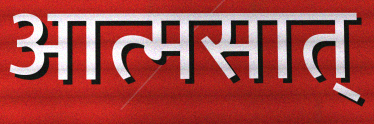
आत्मसात्